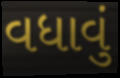
વધાવું